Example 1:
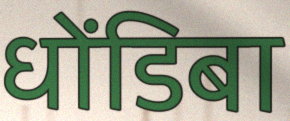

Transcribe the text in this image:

धोंडिबा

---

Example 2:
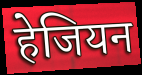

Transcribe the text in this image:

हेजियन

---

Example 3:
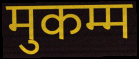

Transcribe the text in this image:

मुकम्म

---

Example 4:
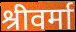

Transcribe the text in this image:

श्रीवर्मा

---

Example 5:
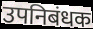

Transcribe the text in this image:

उपनिबंधक